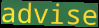
advise